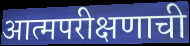
आत्मपरीक्षणाची